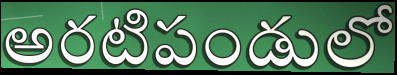
అరటిపండులో